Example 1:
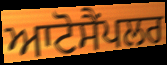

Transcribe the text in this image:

ਆਟੋਸੈਂਪਲਰ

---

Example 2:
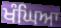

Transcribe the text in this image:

ਖੰਘਿਆ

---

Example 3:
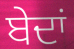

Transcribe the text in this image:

ਬੇਦਾਂ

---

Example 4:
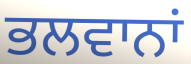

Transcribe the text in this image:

ਭਲਵਾਨਾਂ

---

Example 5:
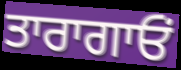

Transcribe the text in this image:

ਤਾਰਾਗਾਓਂ